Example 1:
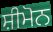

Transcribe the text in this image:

ਸ਼ੀਮੋਨ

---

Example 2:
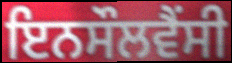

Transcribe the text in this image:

ਇਨਸੌਲਵੈਂਸੀ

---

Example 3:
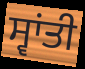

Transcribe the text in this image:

ਸ੍ਵਾਂਤੀ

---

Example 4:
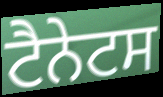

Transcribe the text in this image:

ਟੈਨੇਟਸ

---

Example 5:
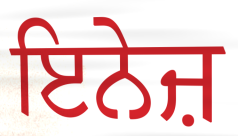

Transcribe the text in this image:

ਇਨੇਜ਼